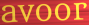
avoor